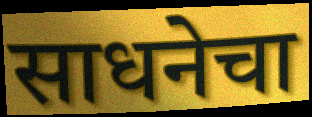
साधनेचा